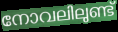
നോവലിലുണ്ട്